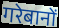
गरेबानों